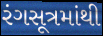
રંગસૂત્રમાંથી